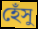
হেঁসু